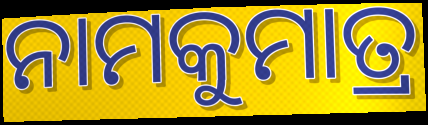
ନାମକୁମାତ୍ର